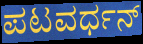
ಪಟವರ್ಧನ್